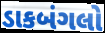
ડાકબંગલો